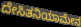
ದೇಸಿತನಿಯಾಮೇನ